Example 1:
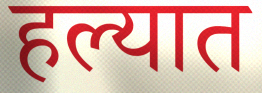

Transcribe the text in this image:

हल्यात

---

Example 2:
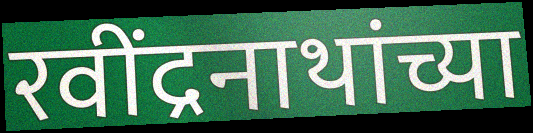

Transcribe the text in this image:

रवींद्रनाथांच्या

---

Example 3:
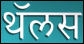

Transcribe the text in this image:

थॅलस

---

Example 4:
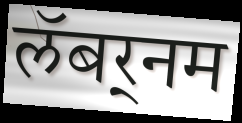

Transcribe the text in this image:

लॅबर्नम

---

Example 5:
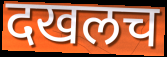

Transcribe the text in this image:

दखलच